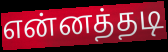
என்னத்தடி